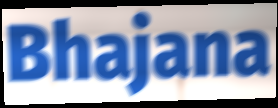
Bhajana